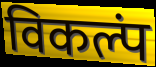
विकल्पं